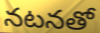
నటనతో